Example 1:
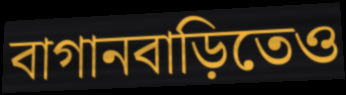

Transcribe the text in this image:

বাগানবাড়িতেও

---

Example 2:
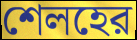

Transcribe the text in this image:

শেলহের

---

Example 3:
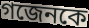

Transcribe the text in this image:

গজেনকে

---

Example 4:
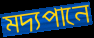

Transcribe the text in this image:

মদ্যপানে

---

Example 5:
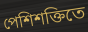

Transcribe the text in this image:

পেশিশক্তিতে